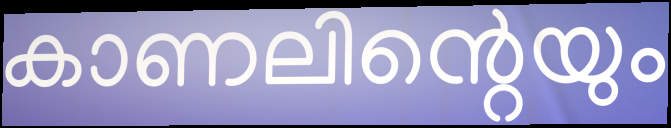
കാണലിന്റെയും